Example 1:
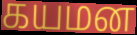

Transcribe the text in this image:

கயமன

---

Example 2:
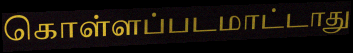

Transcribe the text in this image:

கொள்ளப்படமாட்டாது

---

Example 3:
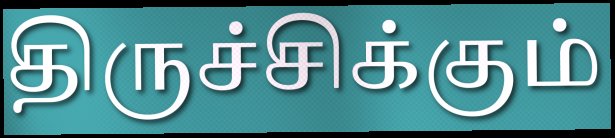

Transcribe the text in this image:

திருச்சிக்கும்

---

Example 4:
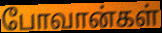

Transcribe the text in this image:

போவான்கள்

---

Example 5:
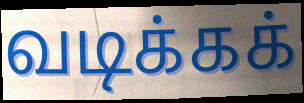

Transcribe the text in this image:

வடிக்கக்